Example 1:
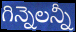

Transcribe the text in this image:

గిన్నెలన్నీ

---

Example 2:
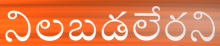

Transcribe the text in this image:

నిలబడలేరని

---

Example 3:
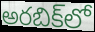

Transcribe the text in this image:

అరబిక్‌లో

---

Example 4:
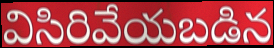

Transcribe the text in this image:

విసిరివేయబడిన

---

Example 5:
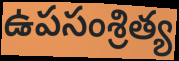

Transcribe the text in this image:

ఉపసంశ్రిత్య